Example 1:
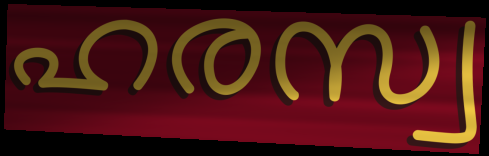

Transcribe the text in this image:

ഹരസ്വ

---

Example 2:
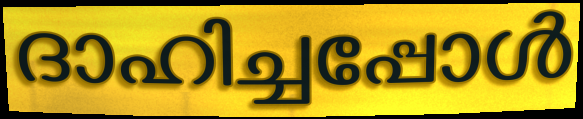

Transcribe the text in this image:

ദാഹിച്ചപ്പോൾ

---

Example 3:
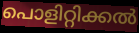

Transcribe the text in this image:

പൊളിറ്റിക്കൽ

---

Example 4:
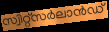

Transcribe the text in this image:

സ്വിറ്റ്സർലാൻഡ്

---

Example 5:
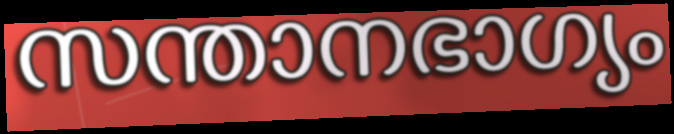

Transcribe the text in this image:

സന്താനഭാഗ്യം